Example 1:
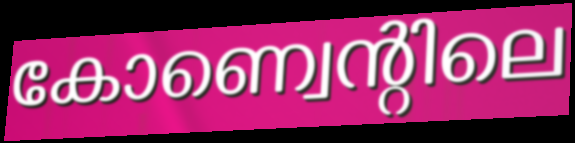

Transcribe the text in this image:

കോണ്വെന്റിലെ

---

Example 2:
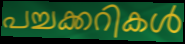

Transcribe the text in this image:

പച്ചക്കറികൾ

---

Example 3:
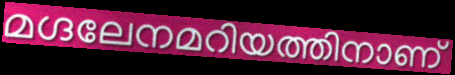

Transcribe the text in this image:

മഗ്ദലേനമറിയത്തിനാണ്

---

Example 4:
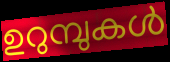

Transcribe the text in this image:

ഉറുമ്പുകൾ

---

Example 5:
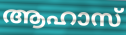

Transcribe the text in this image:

ആഹാസ്